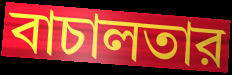
বাচালতার